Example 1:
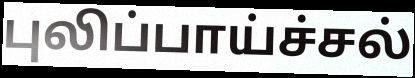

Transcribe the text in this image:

புலிப்பாய்ச்சல்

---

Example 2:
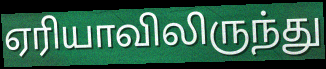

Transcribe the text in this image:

ஏரியாவிலிருந்து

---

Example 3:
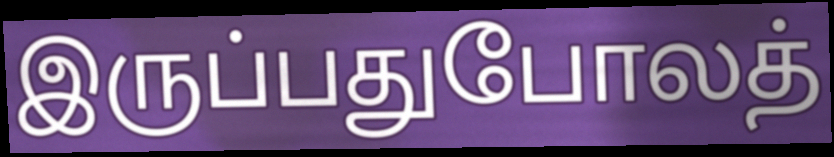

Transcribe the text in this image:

இருப்பதுபோலத்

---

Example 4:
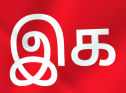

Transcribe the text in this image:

இக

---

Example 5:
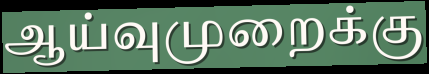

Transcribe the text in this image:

ஆய்வுமுறைக்கு